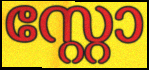
സ്റ്റോ